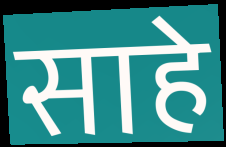
साहे